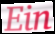
Ein